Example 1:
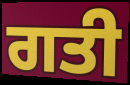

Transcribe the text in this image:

ਗਤੀ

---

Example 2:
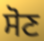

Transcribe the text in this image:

ਸੋਣ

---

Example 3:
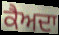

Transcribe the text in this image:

ਕੈਅਦਾ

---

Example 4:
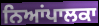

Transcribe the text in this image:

ਨਿਆਂਪਾਲਕਾ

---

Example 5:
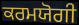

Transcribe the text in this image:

ਕਰਮਯੋਗੀ